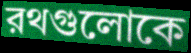
রথগুলোকে